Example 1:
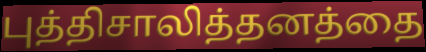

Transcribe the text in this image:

புத்திசாலித்தனத்தை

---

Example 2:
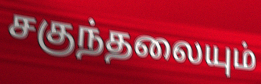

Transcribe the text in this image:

சகுந்தலையும்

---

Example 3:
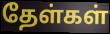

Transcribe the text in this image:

தேள்கள்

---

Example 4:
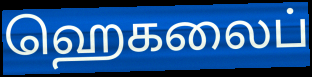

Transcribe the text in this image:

ஹெகலைப்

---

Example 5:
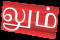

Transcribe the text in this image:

லும்